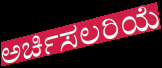
ಅರ್ಚಿಸಲರಿಯೆ